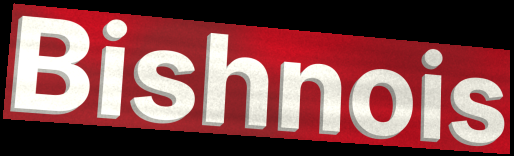
Bishnois